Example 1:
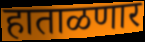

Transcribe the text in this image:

हाताळणार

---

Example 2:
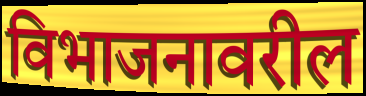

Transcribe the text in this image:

विभाजनावरील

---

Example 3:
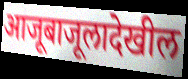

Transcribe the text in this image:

आजूबाजूलादेखील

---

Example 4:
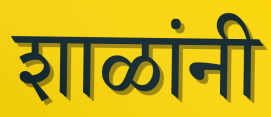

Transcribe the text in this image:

शाळांनी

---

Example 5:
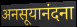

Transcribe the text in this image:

अनसूयानंदना